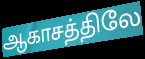
ஆகாசத்திலே